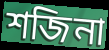
শজিনা